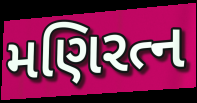
મણિરત્ન